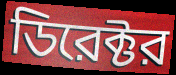
ডিরেক্টর